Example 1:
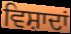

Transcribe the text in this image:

ਵਿਸ਼ਾਦਾਂ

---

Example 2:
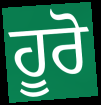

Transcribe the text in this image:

ਹੂਰੋ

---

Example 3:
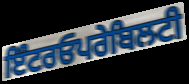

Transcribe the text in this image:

ਇੰਟਰਓਪਰੇਬਿਲਟੀ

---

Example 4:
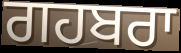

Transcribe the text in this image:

ਗਹਬਰਾ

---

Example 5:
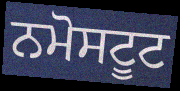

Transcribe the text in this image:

ਨਮੋਸਟੂਟ